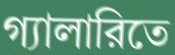
গ্যালারিতে